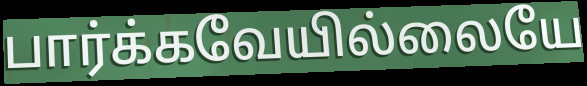
பார்க்கவேயில்லையே